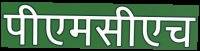
पीएमसीएच